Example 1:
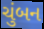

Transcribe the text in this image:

ચુંબન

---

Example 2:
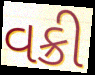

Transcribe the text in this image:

વક્રી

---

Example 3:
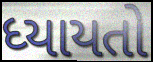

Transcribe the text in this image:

ધ્યાયતો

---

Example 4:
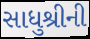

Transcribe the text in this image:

સાધુશ્રીની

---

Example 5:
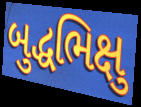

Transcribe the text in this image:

બુદ્ધભિક્ષુ